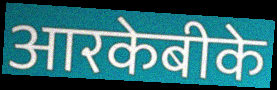
आरकेबीके